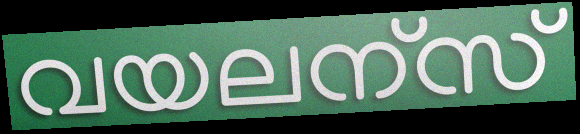
വയലന്സ്